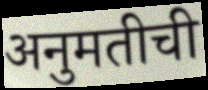
अनुमतीची